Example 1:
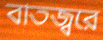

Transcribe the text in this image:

বাতজ্বরে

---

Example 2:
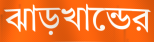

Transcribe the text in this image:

ঝাড়খান্ডের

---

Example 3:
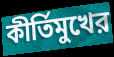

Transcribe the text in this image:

কীর্তিমুখের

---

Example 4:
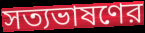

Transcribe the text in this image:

সত্যভাষণের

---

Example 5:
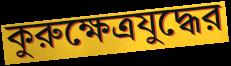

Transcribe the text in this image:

কুরুক্ষেত্রযুদ্ধের